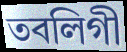
তবলিগী